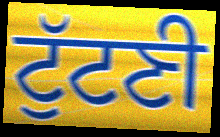
ਟੁੱਟਣੀ